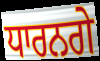
ਧਾਰਨਗੇ